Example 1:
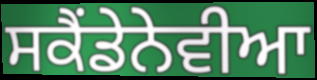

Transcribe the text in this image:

ਸਕੈਂਡੇਨੇਵੀਆ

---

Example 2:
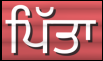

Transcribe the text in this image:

ਪਿੱਤਾ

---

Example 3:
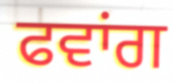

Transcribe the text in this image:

ਫਵਾਂਗ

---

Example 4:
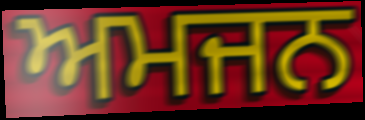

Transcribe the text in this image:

ਅਮਜਨ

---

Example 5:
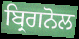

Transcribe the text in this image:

ਬ੍ਰਿਗਨੋਲ